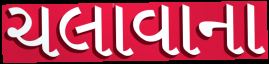
ચલાવાના